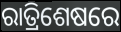
ରାତ୍ରିଶେଷରେ